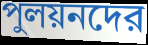
পুলয়নদের